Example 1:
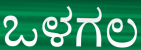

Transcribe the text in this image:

ಒಳಗಲ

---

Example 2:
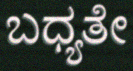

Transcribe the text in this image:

ಬಧ್ಯತೇ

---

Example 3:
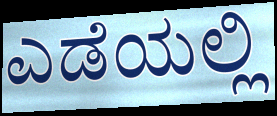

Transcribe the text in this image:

ಎಡೆಯಲ್ಲಿ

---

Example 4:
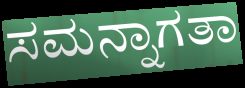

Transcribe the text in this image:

ಸಮನ್ನಾಗತಾ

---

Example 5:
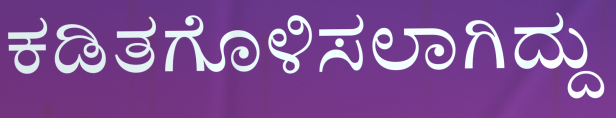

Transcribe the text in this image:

ಕಡಿತಗೊಳಿಸಲಾಗಿದ್ದು